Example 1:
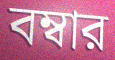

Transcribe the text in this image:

বম্বার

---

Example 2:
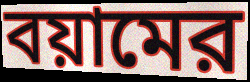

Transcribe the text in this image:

বয়ামের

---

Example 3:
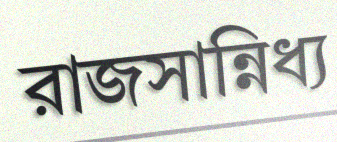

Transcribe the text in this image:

রাজসান্নিধ্য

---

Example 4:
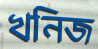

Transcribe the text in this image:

খনিজ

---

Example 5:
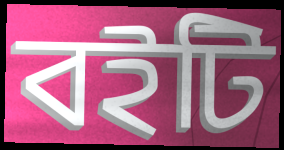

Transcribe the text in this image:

বইটি